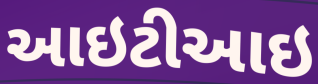
આઇટીઆઇ